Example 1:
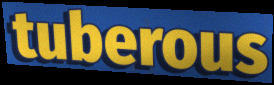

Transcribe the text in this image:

tuberous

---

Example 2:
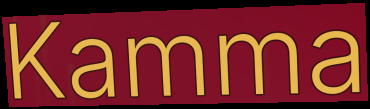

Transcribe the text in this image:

Kamma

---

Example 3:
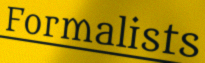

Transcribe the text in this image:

Formalists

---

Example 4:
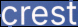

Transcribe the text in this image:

crest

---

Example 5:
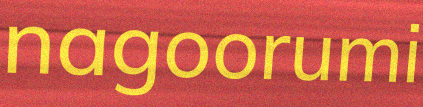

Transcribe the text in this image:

nagoorumi